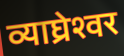
व्याघ्रेश्वर